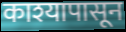
काश्यापासून